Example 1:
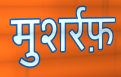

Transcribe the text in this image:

मुशर्रफ़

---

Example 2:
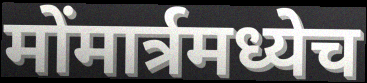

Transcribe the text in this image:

मोंमार्त्रमध्येच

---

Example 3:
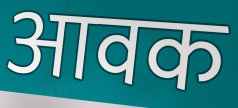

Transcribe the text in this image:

आवक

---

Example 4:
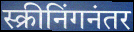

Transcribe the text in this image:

स्क्रीनिंगनंतर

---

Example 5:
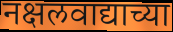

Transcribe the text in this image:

नक्षलवाद्याच्या